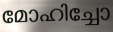
മോഹിച്ചോ